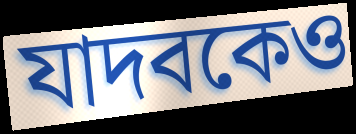
যাদবকেও